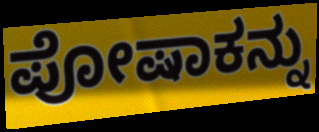
ಪೋಷಾಕನ್ನು